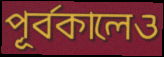
পূর্বকালেও